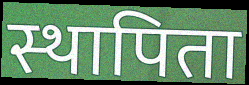
स्थापिता